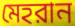
মেহরান